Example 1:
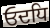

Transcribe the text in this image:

ਓਦਧਿ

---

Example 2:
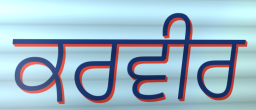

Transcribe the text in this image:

ਕਰਵੀਰ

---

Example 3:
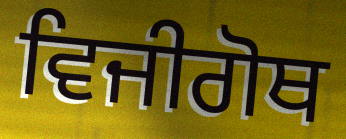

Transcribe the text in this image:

ਵਿਜੀਗੋਥ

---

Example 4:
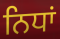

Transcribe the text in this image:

ਨਿਧਾਂ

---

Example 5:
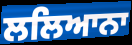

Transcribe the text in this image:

ਲਲਿਆਨਾ